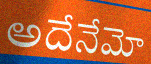
అదేనేమో